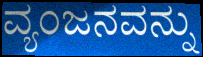
ವ್ಯಂಜನವನ್ನು